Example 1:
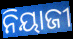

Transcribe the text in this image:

ନିୟାଜୀ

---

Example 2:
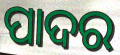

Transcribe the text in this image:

ପାଦର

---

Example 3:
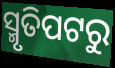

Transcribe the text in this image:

ସ୍ମୃତିପଟରୁ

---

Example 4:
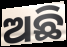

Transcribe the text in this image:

ଅଛି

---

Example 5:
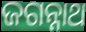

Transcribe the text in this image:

ଜଗନ୍ନାଥ